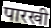
पारखी